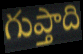
గుప్తాది